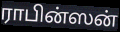
ராபின்ஸன்